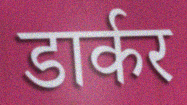
डार्कर